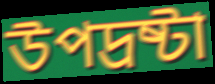
উপদ্রষ্টা